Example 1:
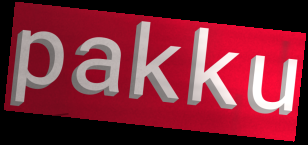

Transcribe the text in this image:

pakku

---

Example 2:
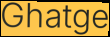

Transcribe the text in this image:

Ghatge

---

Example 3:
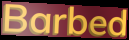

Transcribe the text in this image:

Barbed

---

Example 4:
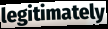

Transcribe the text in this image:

legitimately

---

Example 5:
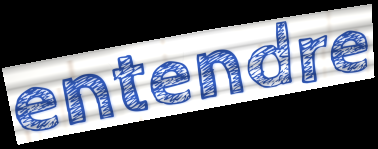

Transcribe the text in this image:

entendre